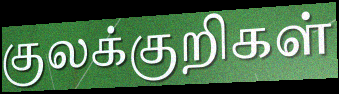
குலக்குறிகள்